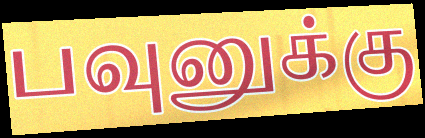
பவுனுக்கு